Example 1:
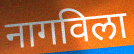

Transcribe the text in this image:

नागविला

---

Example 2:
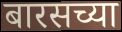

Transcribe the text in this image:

बारसच्या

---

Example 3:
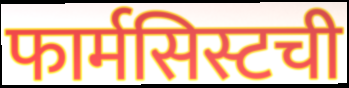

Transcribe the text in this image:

फार्मसिस्टची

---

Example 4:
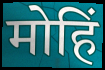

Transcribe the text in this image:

मोहिं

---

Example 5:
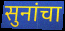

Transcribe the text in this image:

सुनांचा